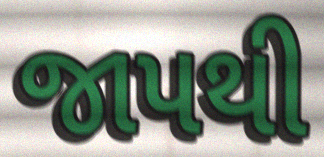
જાપથી